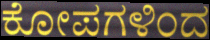
ಕೋಪಗಳಿಂದ